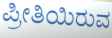
ಪ್ರೀತಿಯಿರುವ